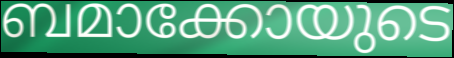
ബമാക്കോയുടെ